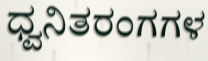
ಧ್ವನಿತರಂಗಗಳ